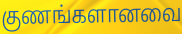
குணங்களானவை